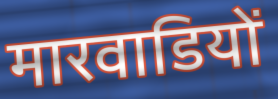
मारवाडियों